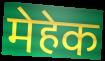
मेहेक